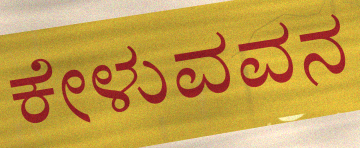
ಕೇಳುವವನ